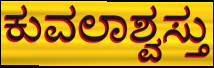
ಕುವಲಾಶ್ವಸ್ತು